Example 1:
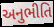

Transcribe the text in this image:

અનુભીતિ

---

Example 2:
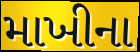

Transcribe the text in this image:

માખીના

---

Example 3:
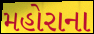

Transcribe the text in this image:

મહોરાના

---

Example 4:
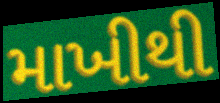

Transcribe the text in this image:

માખીથી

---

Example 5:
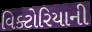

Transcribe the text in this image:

વિક્ટોરિયાની